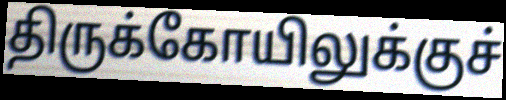
திருக்கோயிலுக்குச்